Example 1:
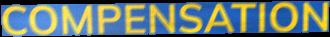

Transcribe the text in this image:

COMPENSATION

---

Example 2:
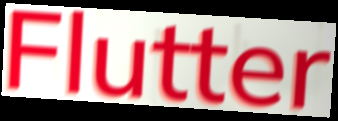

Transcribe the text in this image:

Flutter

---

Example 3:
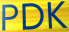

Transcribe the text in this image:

PDK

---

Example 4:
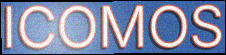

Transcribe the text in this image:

ICOMOS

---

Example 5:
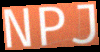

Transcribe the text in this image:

NPJ